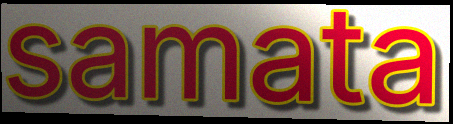
samata